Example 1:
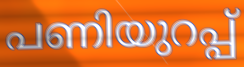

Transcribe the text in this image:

പണിയുറപ്പ്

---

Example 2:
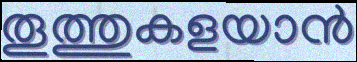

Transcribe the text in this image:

തൂത്തുകളയാൻ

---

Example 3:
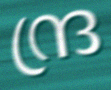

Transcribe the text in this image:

ന്ദ്ര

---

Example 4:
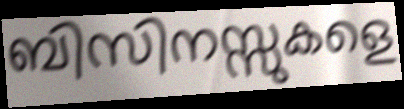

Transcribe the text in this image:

ബിസിനസ്സുകളെ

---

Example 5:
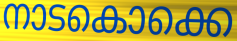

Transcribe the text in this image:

നാടകൊക്കെ